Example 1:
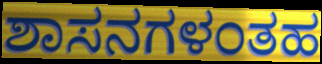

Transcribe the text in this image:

ಶಾಸನಗಳಂತಹ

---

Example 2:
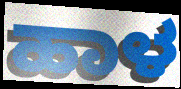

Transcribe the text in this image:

ಹಾಳ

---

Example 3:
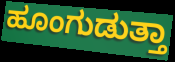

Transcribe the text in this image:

ಹೂಂಗುಡುತ್ತಾ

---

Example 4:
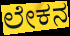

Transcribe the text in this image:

ಲೇಕನ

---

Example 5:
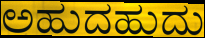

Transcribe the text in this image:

ಅಹುದಹುದು